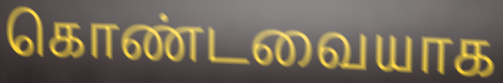
கொண்டவையாக